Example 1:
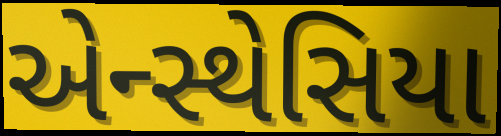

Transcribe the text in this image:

એન્સ્થેસિયા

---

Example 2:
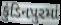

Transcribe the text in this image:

કુંડિનપુરમાં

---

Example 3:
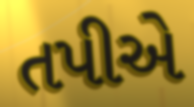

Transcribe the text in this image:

તપીએ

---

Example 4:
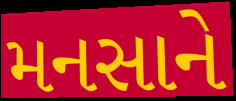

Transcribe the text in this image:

મનસાને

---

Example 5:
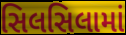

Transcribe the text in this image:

સિલસિલામાં